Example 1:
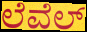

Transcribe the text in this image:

ಲೆವೆಲ್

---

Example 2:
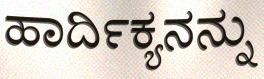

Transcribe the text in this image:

ಹಾರ್ದಿಕ್ಯನನ್ನು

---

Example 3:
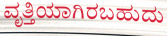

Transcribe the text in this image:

ವೃತ್ತಿಯಾಗಿರಬಹುದು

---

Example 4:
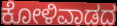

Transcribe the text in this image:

ಕೋಳಿವಾಡದ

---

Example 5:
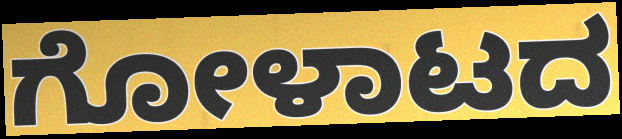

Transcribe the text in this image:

ಗೋಳಾಟದ